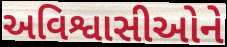
અવિશ્વાસીઓને